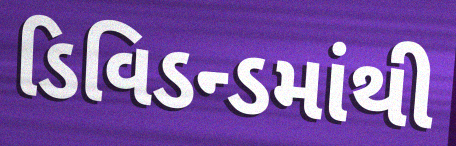
ડિવિડન્ડમાંથી